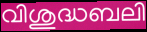
വിശുദ്ധബലി